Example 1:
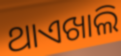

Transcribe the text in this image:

ଥାଏଖାଲି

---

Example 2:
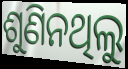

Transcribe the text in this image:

ଶୁଣିନଥିଲୁ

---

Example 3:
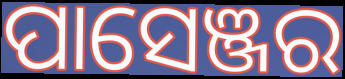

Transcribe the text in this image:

ପାସେଞ୍ଜର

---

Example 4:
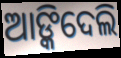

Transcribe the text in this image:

ଆଙ୍କିଦେଲି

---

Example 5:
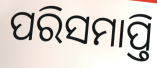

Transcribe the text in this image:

ପରିସମାପ୍ତି